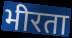
भीरता